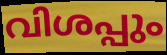
വിശപ്പും